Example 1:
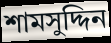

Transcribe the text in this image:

শামসুদ্দিন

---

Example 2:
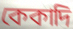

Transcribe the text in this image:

কেকাদি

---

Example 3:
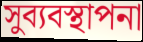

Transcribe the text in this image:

সুব্যবস্থাপনা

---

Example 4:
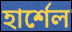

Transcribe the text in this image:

হার্শেল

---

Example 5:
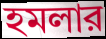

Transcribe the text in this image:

হমলার